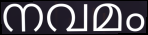
നവമം